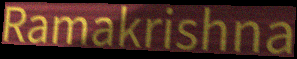
Ramakrishna